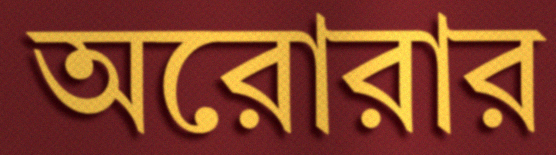
অরোরার